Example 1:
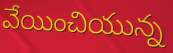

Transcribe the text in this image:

వేయించియున్న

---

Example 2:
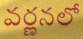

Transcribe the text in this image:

వర్ణనలో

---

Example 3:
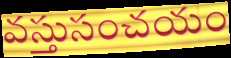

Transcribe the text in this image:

వస్తుసంచయం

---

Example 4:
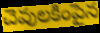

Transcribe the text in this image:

చెవులకింపైన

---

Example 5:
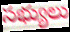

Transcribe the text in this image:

సభ్యులు